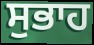
ਸੁਭਾਹ